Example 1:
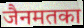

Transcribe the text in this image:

जैनमतका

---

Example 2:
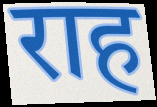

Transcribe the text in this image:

राह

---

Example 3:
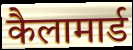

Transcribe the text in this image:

कैलामार्ड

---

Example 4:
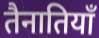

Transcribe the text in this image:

तैनातियाँ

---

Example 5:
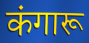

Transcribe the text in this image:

कंगारू